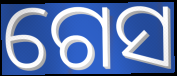
ଗେସ